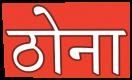
ठोना